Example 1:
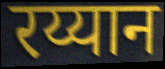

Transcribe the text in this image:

रय्यान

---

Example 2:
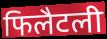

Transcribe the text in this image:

फिलैटली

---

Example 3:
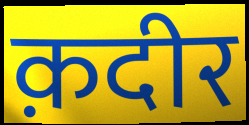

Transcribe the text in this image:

क़दीर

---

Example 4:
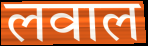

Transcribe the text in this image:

लवाल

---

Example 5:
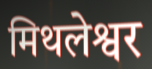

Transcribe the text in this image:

मिथलेश्वर